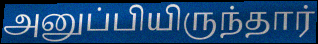
அனுப்பியிருந்தார்